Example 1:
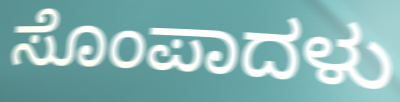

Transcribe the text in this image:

ಸೊಂಪಾದಳು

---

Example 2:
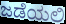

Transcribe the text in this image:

ಜಡೆಯಲಿ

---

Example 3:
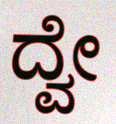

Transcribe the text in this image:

ದ್ವೇ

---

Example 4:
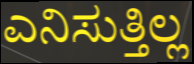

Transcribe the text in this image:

ಎನಿಸುತ್ತಿಲ್ಲ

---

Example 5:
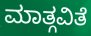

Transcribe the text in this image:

ಮಾತ್ಗವಿತೆ